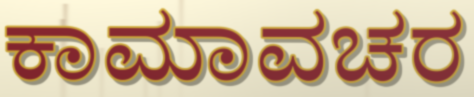
ಕಾಮಾವಚರ